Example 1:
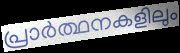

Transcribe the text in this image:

പ്രാർത്ഥനകളിലും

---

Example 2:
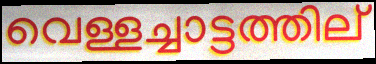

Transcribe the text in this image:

വെള്ളച്ചാട്ടത്തില്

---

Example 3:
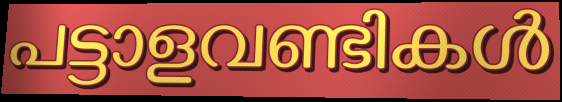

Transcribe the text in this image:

പട്ടാളവണ്ടികൾ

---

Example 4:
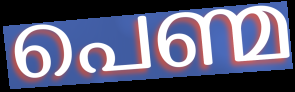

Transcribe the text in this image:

പെണ്മ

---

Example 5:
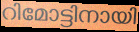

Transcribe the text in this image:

റിമോട്ടിനായി